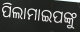
ପିଲାମାଇପଙ୍କୁ